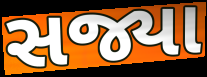
સજ્યા